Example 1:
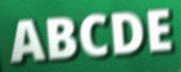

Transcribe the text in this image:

ABCDE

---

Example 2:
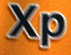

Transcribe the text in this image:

Xp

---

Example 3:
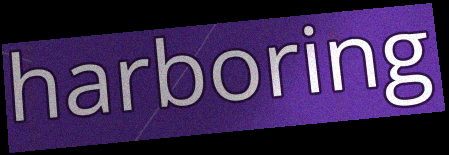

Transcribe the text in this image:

harboring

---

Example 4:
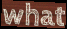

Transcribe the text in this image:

what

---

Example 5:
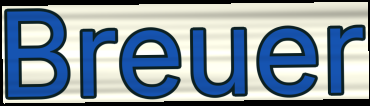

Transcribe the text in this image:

Breuer